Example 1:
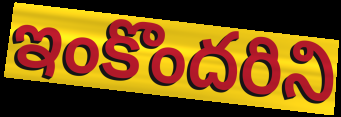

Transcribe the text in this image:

ఇంకొందరిని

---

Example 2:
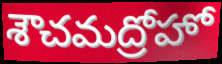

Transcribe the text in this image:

శౌచమద్రోహో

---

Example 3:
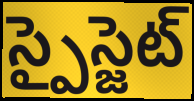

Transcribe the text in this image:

స్పైస్జెట్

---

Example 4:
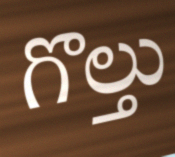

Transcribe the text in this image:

గొల్తు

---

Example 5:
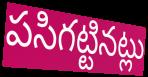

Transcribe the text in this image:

పసిగట్టినట్లు